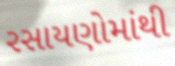
રસાયણોમાંથી